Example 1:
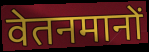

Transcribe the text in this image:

वेतनमानों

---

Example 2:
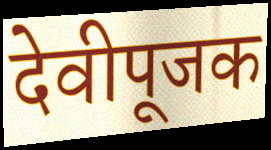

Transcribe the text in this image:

देवीपूजक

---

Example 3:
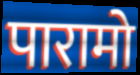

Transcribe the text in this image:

पारामो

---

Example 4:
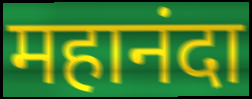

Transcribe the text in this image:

महानंदा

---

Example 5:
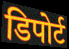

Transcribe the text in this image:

डिपोर्ट